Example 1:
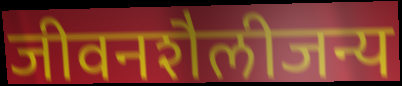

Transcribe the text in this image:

जीवनशैलीजन्य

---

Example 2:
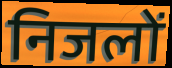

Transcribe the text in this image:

निजलों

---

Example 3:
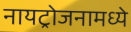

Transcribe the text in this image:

नायट्रोजनामध्ये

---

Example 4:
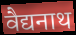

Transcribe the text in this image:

वैद्यनाथ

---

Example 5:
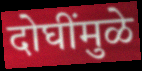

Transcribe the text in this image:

दोघींमुळे